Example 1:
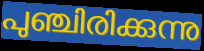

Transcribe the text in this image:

പുഞ്ചിരിക്കുന്നു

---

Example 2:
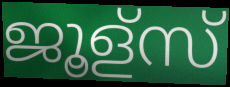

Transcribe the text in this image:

ജൂള്സ്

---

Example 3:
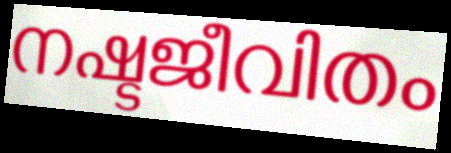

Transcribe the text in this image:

നഷ്ടജീവിതം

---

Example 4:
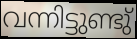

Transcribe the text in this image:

വന്നിട്ടുണ്ടു്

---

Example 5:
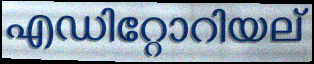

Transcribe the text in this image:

എഡിറ്റോറിയല്